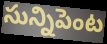
సున్నిపెంట